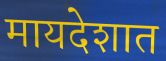
मायदेशात